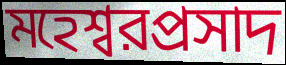
মহেশ্বরপ্রসাদ